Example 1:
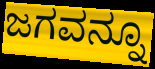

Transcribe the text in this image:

ಜಗವನ್ನೂ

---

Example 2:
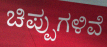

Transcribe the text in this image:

ಚಿಪ್ಪುಗಳಿವೆ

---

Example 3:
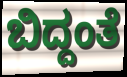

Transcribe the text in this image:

ಬಿದ್ದಂತೆ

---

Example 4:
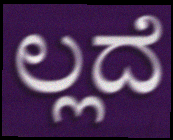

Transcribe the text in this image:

ಲ್ಲದೆ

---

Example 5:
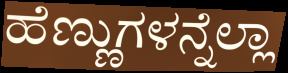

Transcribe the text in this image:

ಹೆಣ್ಣುಗಳನ್ನೆಲ್ಲಾ